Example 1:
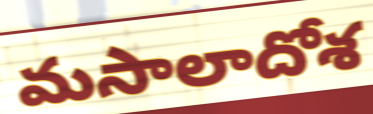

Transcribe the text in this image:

మసాలాదోశ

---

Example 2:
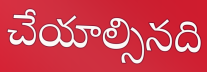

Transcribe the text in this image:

చేయాల్సినది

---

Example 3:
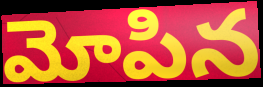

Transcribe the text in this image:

మోపిన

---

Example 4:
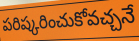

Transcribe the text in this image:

పరిష్కరించుకోవచ్చనే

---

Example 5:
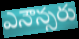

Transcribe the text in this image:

ఎనౌన్సరు